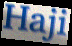
Haji